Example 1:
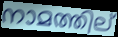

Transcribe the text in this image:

നാമത്തില്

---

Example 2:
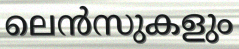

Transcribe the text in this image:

ലെൻസുകളും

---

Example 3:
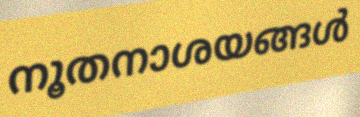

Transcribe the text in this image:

നൂതനാശയങ്ങൾ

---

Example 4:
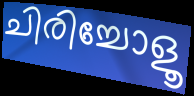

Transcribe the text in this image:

ചിരിച്ചോളൂ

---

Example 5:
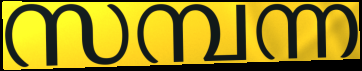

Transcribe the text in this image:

സമ്പന്ന